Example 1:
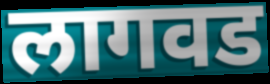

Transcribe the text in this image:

लागवड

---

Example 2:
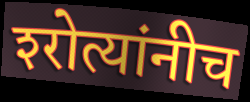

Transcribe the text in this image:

श्रोत्यांनीच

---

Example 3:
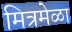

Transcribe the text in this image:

मित्रमेळा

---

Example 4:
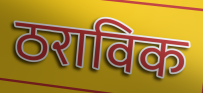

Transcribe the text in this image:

ठराविक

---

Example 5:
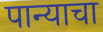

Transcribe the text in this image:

पान्याचा